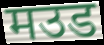
मउड